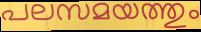
പലസമയത്തും